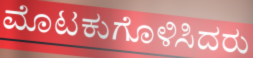
ಮೊಟಕುಗೊಳಿಸಿದರು